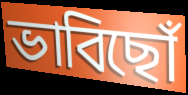
ভাবিছোঁ